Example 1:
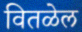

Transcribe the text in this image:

वितळेल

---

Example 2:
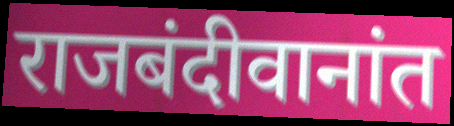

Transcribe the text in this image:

राजबंदीवानांत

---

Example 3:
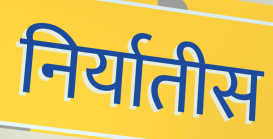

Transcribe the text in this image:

निर्यातीस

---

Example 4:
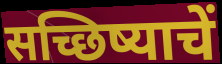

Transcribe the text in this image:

सच्छिष्याचें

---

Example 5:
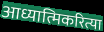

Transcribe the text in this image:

आध्यात्मिकरित्या